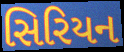
સિરિયન